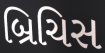
બ્રિચિસ